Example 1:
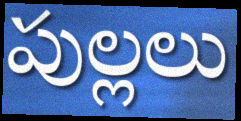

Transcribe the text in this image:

పుల్లలు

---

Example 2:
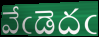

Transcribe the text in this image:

వేఁడెదఁ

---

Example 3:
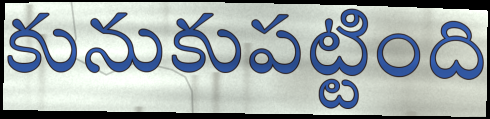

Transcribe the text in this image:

కునుకుపట్టింది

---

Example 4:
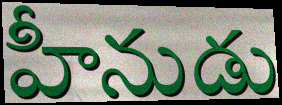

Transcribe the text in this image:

హీనుడు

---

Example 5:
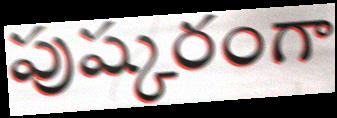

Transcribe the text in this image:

పుష్కరంగా